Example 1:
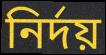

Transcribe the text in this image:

নিৰ্দয়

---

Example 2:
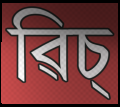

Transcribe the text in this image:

ৱিচ্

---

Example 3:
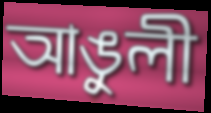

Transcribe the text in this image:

আঙুলী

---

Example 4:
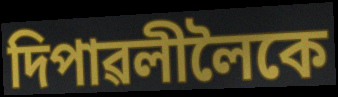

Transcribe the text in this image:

দিপাৱলীলৈকে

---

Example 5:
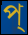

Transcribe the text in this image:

প্